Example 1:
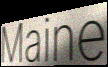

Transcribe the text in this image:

Maine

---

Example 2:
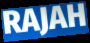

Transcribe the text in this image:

RAJAH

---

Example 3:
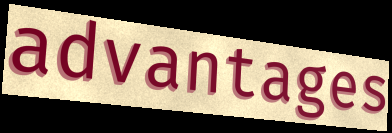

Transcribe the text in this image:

advantages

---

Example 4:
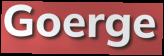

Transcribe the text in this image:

Goerge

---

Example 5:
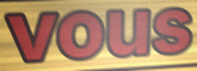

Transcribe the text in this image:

vous